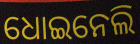
ଧୋଇନେଲି